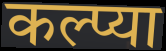
कल्प्या